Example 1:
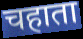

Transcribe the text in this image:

चहाता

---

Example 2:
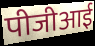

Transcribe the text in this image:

पीजीआई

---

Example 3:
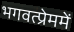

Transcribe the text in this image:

भगवत्प्रेममें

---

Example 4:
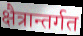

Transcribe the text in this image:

क्षैत्रान्तर्गत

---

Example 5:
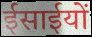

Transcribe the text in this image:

ईसाईयों